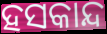
ହସକାନ୍ଦ